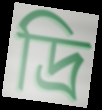
দ্রি